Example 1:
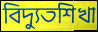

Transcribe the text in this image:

বিদ্যুতশিখা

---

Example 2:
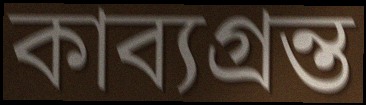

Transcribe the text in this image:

কাব্যগ্রন্ত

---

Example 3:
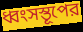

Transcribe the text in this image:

ধ্বংসস্তূপের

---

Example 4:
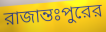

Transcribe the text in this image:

রাজান্তঃপুরের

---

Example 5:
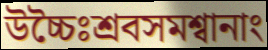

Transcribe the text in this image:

উচ্চৈঃশ্রবসমশ্বানাং